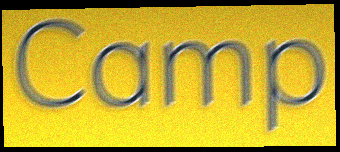
Camp